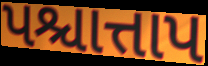
પશ્ચાત્તાપ